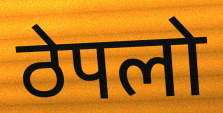
ठेपलो